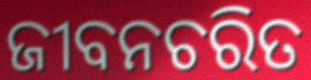
ଜୀବନଚରିତ